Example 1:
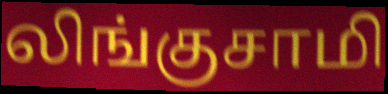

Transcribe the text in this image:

லிங்குசாமி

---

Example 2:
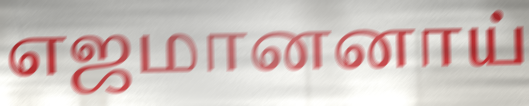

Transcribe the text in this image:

எஜமானனாய்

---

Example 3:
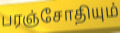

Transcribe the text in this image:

பரஞ்சோதியும்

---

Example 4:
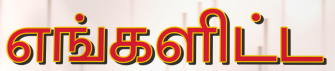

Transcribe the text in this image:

எங்களிட்ட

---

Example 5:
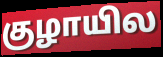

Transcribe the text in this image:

குழாயில